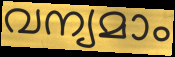
വന്യമാം